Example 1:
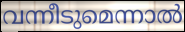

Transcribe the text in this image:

വന്നീടുമെന്നാൽ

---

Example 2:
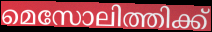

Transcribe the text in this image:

മെസോലിത്തിക്ക്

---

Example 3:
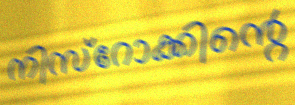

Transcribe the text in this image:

നിസ്റോക്കിന്റെ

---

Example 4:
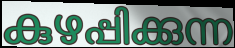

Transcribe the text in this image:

കുഴപ്പിക്കുന്ന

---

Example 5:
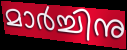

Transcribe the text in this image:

മാർച്ചിനു